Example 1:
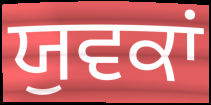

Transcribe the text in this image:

ਯੁਵਕਾਂ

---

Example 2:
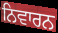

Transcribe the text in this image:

ਨਿਵਾਰਨ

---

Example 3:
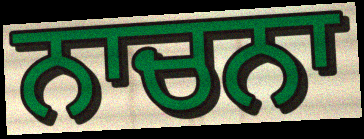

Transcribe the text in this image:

ਨਾਚਨਾ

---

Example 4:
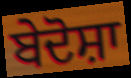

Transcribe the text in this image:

ਬੇਦੋਸ਼ਾ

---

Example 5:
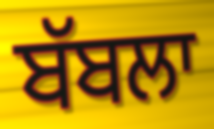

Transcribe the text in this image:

ਬੱਬਲਾ